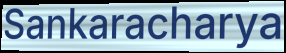
Sankaracharya